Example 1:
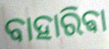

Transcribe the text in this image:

ବାହାରିଵା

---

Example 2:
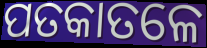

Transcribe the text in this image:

ପତକାତଳେ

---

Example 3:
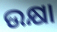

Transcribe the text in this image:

ଉକ୍ଷା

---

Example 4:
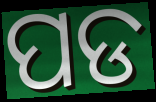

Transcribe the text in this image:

ପଡ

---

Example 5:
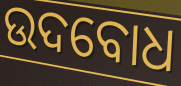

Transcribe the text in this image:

ଉଦବୋଧ